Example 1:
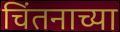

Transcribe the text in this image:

चिंतनाच्या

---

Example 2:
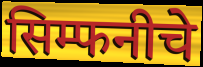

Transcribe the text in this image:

सिम्फनीचे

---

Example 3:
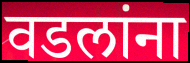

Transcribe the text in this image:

वडलांना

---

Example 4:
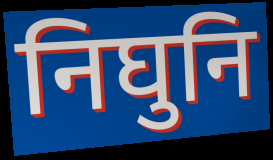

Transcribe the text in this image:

निघुनि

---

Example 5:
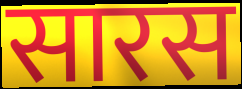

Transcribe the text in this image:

सारस